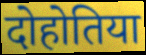
दोहोतिया